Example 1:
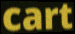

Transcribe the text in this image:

cart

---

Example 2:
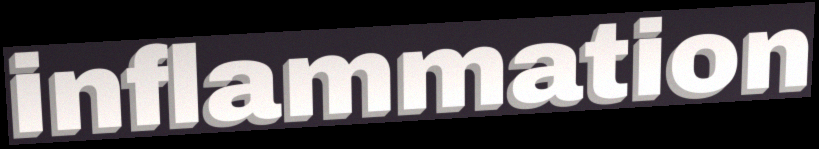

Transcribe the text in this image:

inflammation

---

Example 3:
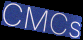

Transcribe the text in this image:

CMCs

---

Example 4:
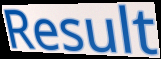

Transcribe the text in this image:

Result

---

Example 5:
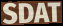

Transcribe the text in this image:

SDAT